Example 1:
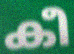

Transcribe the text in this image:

കീ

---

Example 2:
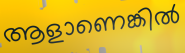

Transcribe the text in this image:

ആളാണെങ്കിൽ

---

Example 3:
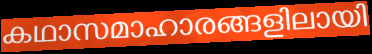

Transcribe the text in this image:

കഥാസമാഹാരങ്ങളിലായി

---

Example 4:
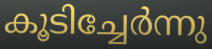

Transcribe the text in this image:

കൂടിച്ചേർന്നു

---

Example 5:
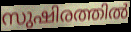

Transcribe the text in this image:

സുഷിരത്തിൽ